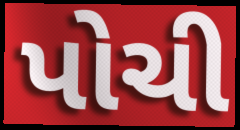
પોચી